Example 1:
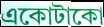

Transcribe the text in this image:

একোটাকো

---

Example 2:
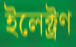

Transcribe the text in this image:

ইলেক্ট্ৰণ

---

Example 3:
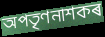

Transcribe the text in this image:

অপতৃণনাশকৰ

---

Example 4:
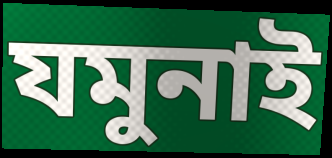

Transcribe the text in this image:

যমুনাই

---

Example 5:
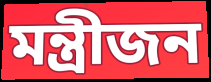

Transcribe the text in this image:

মন্ত্ৰীজন